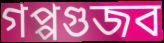
গপ্পগুজব